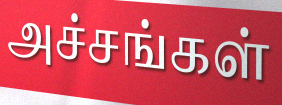
அச்சங்கள்